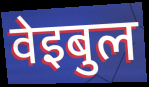
वेइबुल